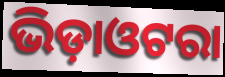
ଭିଡ଼ାଓଟରା